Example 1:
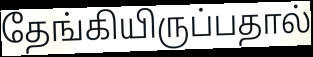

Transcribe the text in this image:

தேங்கியிருப்பதால்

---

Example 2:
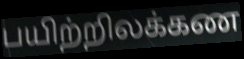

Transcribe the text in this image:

பயிற்றிலக்கண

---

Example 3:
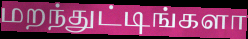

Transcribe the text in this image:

மறந்துட்டிங்களா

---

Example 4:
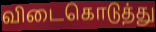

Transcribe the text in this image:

விடைகொடுத்து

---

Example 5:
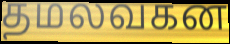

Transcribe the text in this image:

தமலவகன